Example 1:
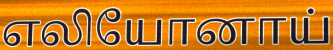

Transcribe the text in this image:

எலியோனாய்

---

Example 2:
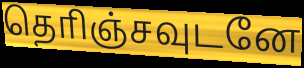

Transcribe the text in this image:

தெரிஞ்சவுடனே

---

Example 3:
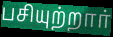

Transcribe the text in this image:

பசியுற்றார்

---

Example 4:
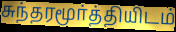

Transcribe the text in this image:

சுந்தரமூர்த்தியிடம்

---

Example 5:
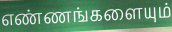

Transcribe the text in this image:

எண்ணங்களையும்